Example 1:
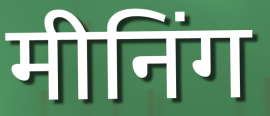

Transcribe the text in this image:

मीनिंग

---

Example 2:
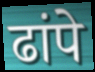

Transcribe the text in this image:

ढांपे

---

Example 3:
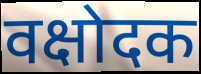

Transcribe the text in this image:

वक्षोदक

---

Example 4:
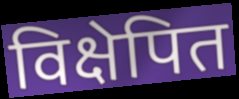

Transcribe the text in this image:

विक्षेपित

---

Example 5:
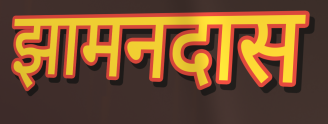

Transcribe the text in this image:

झामनदास